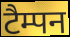
टैम्पन